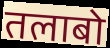
तलाबो